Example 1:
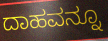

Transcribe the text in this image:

ದಾಹವನ್ನೂ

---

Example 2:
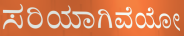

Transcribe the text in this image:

ಸರಿಯಾಗಿವೆಯೋ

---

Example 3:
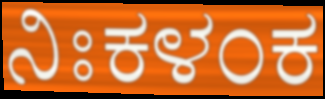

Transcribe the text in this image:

ನಿಃಕಳಂಕ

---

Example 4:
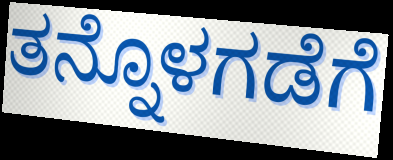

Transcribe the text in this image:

ತನ್ನೊಳಗಡೆಗೆ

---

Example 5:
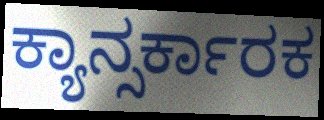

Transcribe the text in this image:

ಕ್ಯಾನ್ಸರ್ಕಾರಕ